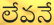
లేవనే